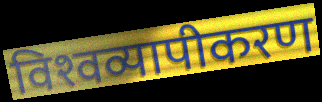
विश्वव्यापीकरण